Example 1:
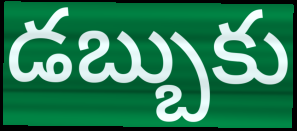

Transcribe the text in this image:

డబ్బుకు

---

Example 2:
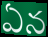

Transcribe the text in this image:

ఏన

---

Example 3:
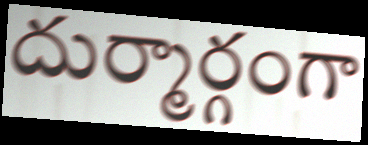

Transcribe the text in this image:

దుర్మార్గంగా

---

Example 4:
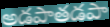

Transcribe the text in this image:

అడపాతడపా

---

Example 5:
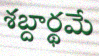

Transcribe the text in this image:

శబ్దార్థమే